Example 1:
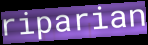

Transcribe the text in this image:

riparian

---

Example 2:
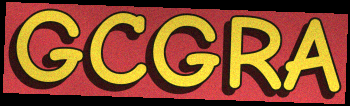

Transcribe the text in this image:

GCGRA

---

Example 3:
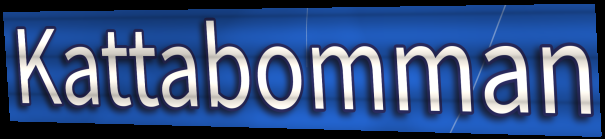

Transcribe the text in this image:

Kattabomman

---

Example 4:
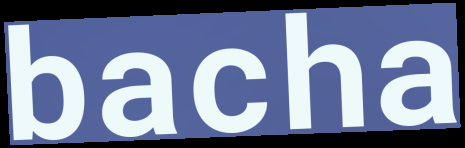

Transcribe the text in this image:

bacha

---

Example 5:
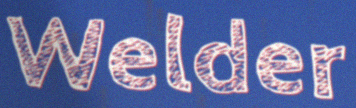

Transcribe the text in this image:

Welder